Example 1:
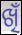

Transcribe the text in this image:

ଖିଁ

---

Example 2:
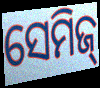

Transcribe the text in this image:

ସେମିଜ୍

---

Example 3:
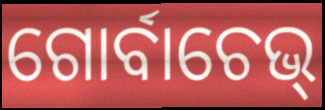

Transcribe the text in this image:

ଗୋର୍ବାଚେଭ୍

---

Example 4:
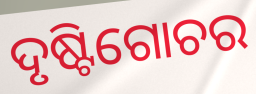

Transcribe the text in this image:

ଦୃଷ୍ଟିଗୋଚର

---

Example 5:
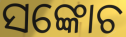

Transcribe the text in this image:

ସଙ୍କୋଚ